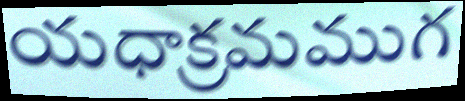
యధాక్రమముగ